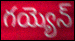
గయ్యెన్